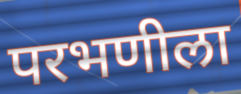
परभणीला